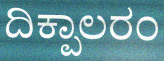
ದಿಕ್ಪಾಲರಂ